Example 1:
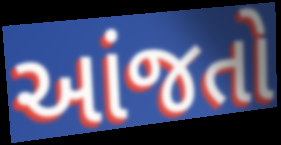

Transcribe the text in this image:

આંજતો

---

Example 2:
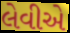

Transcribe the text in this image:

લેવીએ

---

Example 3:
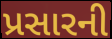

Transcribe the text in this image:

પ્રસારની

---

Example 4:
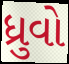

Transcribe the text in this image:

ધ્રુવો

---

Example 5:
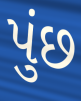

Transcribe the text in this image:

પુંછ